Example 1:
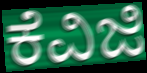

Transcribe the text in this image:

ಕೆವಿಜಿ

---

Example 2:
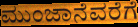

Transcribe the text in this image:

ಮುಂಜಾನೆವರೆಗೆ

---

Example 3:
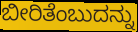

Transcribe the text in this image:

ಬೀರಿತೆಂಬುದನ್ನು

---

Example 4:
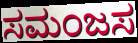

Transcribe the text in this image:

ಸಮಂಜಸ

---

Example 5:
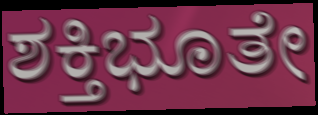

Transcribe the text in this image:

ಶಕ್ತಿಭೂತೇ